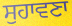
ਸੁਹਾਵਣਾ